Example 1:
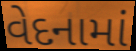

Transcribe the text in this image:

વેદનામાં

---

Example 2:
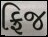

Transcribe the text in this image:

ફ્રિજ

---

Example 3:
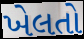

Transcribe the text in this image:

ખેલતો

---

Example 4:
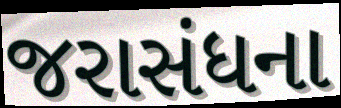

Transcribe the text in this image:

જરાસંધના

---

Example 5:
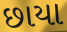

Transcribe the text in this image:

છાયા